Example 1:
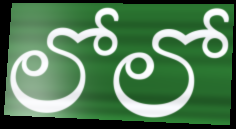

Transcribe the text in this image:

లోలో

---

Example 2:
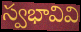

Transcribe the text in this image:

స్వభావివి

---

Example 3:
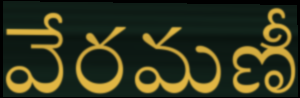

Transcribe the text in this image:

వేరమణీ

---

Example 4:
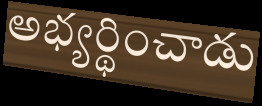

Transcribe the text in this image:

అభ్యర్థించాడు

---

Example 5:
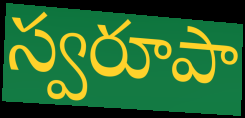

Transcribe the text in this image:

స్వరూపా